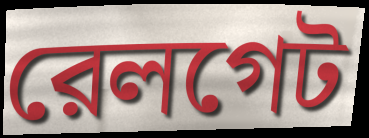
রেলগেট